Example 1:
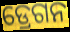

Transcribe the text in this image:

ଡ୍ରେଗନ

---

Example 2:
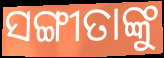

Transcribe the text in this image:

ସଙ୍ଗୀତାଙ୍କୁ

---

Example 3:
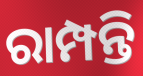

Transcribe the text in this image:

ରାମ୍ପନ୍ତି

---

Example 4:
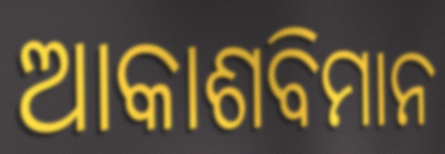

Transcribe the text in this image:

ଆକାଶବିମାନ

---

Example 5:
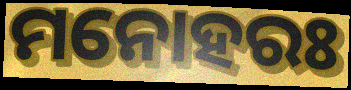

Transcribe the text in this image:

ମନୋହରଃ